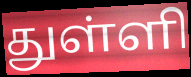
துள்ளி